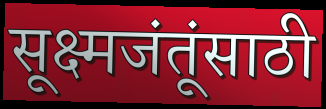
सूक्ष्मजंतूंसाठी